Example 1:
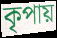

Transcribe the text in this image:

কৃপায়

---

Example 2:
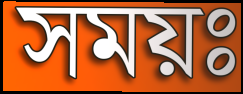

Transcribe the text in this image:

সময়ঃ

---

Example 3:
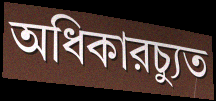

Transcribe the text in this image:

অধিকারচ্যুত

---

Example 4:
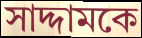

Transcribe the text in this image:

সাদ্দামকে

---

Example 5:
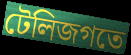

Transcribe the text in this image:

টেলিজগতে